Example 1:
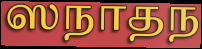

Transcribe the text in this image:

ஸநாதந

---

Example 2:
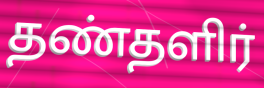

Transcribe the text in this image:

தண்தளிர்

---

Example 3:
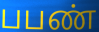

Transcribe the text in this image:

பபண்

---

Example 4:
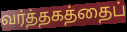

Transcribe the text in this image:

வர்த்தகத்தைப்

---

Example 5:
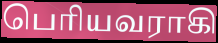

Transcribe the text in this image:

பெரியவராகி